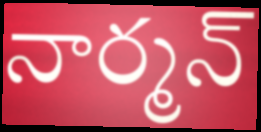
నార్మన్